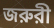
জরুরী